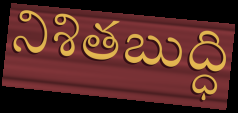
నిశితబుద్ధి